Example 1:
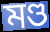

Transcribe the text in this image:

মণ্ড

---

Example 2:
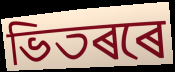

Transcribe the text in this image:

ভিতৰৰে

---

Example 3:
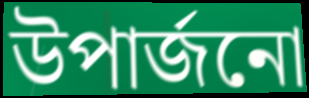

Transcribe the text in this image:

উপাৰ্জনো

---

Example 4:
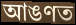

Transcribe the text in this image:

আঙণত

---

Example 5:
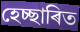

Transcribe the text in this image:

হেচ্ছাৰিত